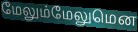
மேலும்மேலுமென